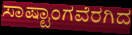
ಸಾಷ್ಟಾಂಗವೆರಗಿದ